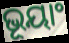
ଭୂୟାଂ